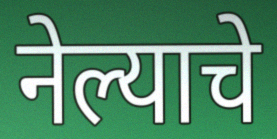
नेल्याचे